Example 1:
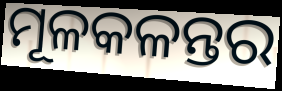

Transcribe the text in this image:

ମୂଳକଳନ୍ତର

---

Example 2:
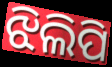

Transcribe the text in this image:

ଝିଲିପି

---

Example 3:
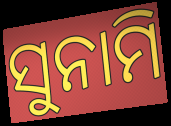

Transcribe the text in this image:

ସୁନାମି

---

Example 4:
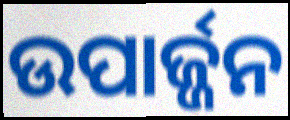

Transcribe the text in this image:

ଉପାର୍ଜ୍ଜନ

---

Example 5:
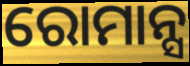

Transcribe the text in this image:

ରୋମାନ୍ସ